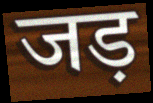
जड़